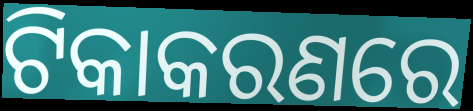
ଟିକାକରଣରେ